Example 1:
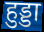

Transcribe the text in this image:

हुड्डा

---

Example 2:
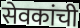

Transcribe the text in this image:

सेवकांची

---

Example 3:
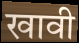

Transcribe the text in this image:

खावी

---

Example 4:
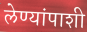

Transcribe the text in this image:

लेण्यांपाशी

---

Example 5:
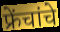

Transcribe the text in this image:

फ्रेंचांचे